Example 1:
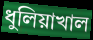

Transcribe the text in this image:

ধুলিয়াখাল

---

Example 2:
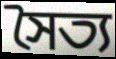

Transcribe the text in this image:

সৈত্য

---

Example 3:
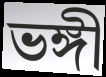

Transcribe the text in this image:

ভঙ্গী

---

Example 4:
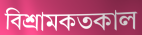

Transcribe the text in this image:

বিশ্রামকতকাল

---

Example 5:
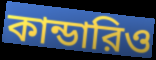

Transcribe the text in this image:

কান্ডারিও